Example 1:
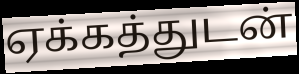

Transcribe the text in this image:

ஏக்கத்துடன்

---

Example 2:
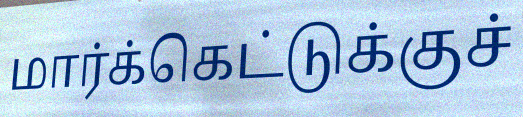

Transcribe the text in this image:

மார்க்கெட்டுக்குச்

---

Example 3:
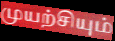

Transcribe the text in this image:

முயற்சியும்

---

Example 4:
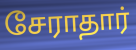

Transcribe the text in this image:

சேராதார்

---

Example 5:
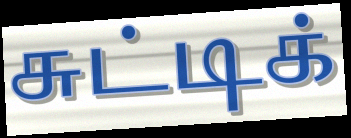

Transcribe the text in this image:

சுட்டிக்